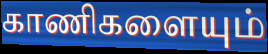
காணிகளையும்